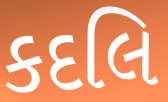
કદલિ